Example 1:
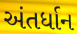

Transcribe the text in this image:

અંતર્ધાન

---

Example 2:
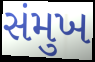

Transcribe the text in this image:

સંમુખ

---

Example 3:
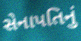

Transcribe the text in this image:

સેનાપતિનું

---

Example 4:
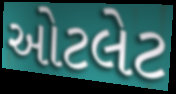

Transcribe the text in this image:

ઓટલેટ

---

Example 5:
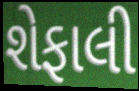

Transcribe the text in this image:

શેફાલી